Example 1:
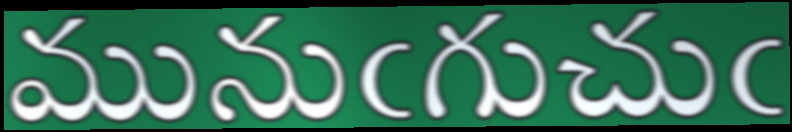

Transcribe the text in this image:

మునుఁగుచుఁ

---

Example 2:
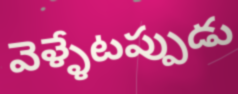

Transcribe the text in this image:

వెళ్ళేటప్పుడు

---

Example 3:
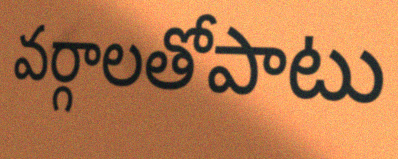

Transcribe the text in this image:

వర్గాలతోపాటు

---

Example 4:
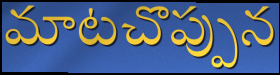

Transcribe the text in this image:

మాటచొప్పున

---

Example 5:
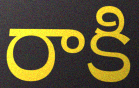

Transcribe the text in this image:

రాకి